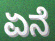
ಏನೆ